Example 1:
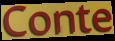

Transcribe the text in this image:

Conte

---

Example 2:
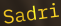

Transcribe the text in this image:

Sadri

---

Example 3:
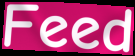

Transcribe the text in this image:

Feed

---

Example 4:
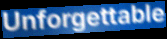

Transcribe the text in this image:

Unforgettable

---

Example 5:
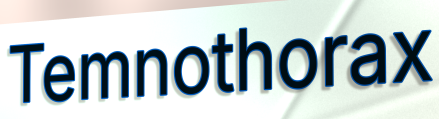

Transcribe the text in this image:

Temnothorax